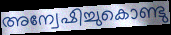
അന്വേഷിച്ചുകൊണ്ടു